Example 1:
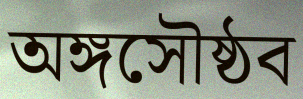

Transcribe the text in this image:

অঙ্গসৌষ্ঠব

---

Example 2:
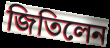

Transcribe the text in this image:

জিতিলেন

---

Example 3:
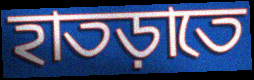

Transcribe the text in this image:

হাতড়াতে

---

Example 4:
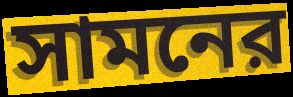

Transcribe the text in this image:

সামনের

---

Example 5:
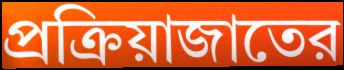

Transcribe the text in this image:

প্রক্রিয়াজাতের